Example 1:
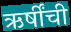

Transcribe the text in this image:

ऋर्षींची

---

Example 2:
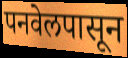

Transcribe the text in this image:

पनवेलपासून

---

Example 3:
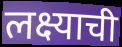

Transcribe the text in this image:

लक्ष्याची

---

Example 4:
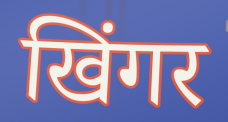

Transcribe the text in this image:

खिंगर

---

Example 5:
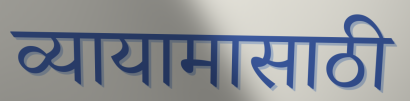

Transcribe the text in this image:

व्यायामासाठी